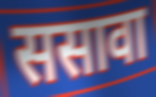
ससावा